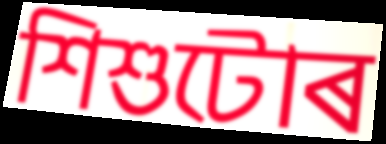
শিশুটোৰ